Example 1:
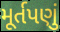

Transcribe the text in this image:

મૂર્તપણું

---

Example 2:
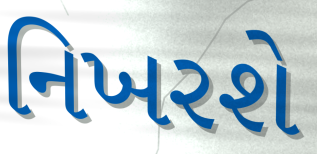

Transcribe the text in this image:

નિખરશે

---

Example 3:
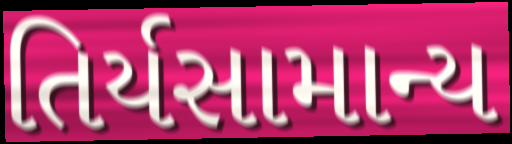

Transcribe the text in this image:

તિર્યસામાન્ય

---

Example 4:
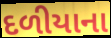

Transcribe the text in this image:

દળીયાના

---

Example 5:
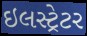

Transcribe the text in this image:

ઇલસ્ટ્રેટર